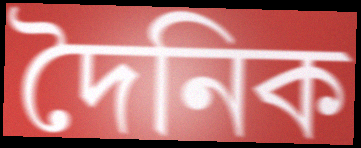
দৈনিক